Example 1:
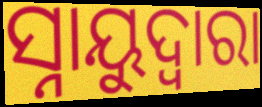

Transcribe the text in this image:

ସ୍ନାୟୁଦ୍ଵାରା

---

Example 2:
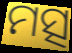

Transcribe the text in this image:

ମତ୍ସ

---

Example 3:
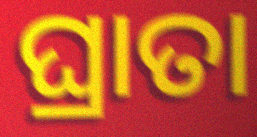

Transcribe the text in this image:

ଘ୍ରାତା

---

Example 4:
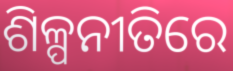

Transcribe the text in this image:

ଶିଳ୍ପନୀତିରେ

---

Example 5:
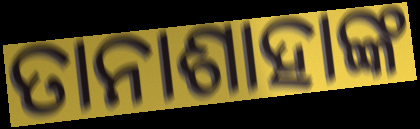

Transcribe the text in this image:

ତାନାଶାହାଙ୍କ